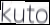
kuto